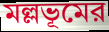
মল্লভূমের